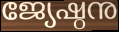
ജ്യേഷ്ഠനു